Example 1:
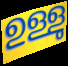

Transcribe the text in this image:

ഉള്ളു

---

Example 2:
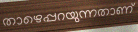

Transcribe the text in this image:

താഴെപ്പറയുന്നതാണ്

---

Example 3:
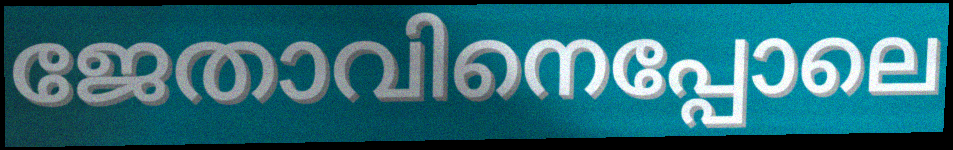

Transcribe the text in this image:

ജേതാവിനെപ്പോലെ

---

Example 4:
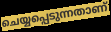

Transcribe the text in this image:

ചെയ്യപ്പെടുന്നതാണ്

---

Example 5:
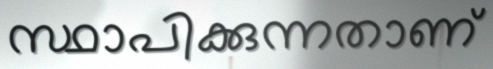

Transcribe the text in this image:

സ്ഥാപിക്കുന്നതാണ്